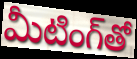
మీటింగ్‌తో